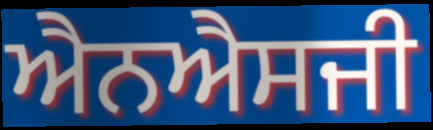
ਐਨਐਸਜੀ